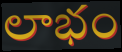
లాభం